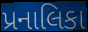
પ્રનાલિકા